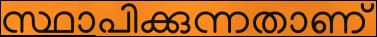
സ്ഥാപിക്കുന്നതാണ്